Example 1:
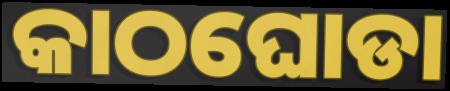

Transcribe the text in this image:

କାଠଘୋଡା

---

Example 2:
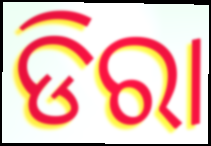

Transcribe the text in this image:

ଡିରା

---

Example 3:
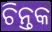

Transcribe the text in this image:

ଚିନ୍ତକ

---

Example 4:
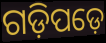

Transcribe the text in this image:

ଗଡ଼ିପଡ଼େ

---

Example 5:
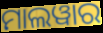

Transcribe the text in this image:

ମାଲୱାର